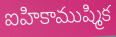
ఐహికాముష్మిక